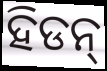
ହିଡନ୍